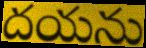
దయను